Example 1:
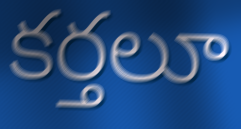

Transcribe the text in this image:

కర్తలూ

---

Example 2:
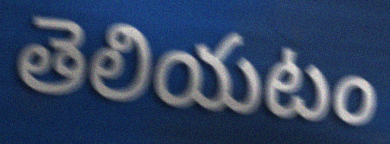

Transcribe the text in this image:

తెలియటం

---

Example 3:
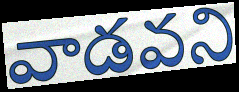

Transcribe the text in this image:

వాడవని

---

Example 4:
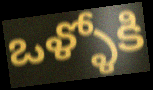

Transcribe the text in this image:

ఒళ్ళోకి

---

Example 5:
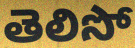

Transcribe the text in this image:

తెలిసో